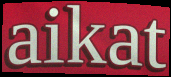
aikat